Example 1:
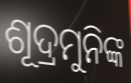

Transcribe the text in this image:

ଶୂଦ୍ରମୁନିଙ୍କ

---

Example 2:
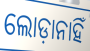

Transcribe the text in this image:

ଲୋଡ଼ାନାହିଁ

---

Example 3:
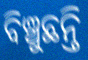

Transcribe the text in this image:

ବିଞ୍ଚୁଛନ୍ତି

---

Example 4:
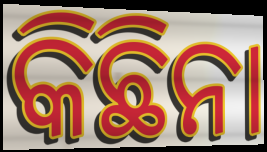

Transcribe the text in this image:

କିଛିନା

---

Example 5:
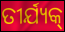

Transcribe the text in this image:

ତୀର୍ଯ୍ୟକ୍